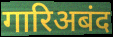
गारिअबंद